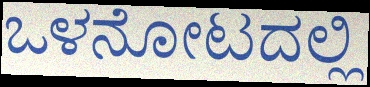
ಒಳನೋಟದಲ್ಲಿ